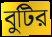
বুটির